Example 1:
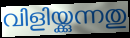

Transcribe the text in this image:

വിളിയ്ക്കുന്നതു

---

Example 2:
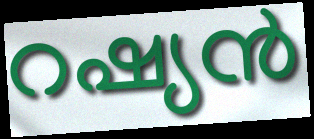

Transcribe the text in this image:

റഷ്യൻ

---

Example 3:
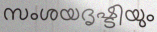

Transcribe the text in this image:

സംശയദൃഷ്ടിയും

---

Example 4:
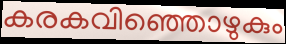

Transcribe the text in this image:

കരകവിഞ്ഞൊഴുകും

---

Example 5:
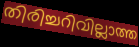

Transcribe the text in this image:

തിരിച്ചറിവില്ലാത്ത